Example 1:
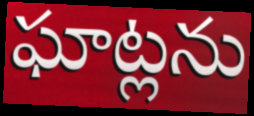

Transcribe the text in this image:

ఘాట్లను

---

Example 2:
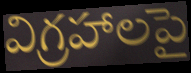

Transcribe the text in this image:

విగ్రహాలపై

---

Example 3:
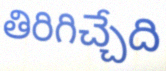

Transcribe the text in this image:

తిరిగిచ్చేది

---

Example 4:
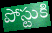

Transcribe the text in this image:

పోస్టుకి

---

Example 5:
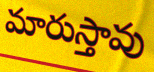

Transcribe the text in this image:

మారుస్తావు